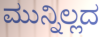
ಮುನ್ನಿಲ್ಲದ